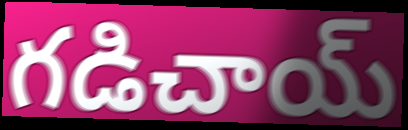
గడిచాయ్